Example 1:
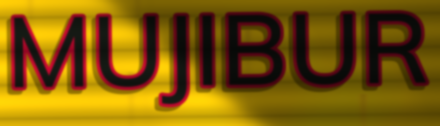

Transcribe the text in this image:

MUJIBUR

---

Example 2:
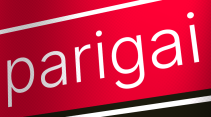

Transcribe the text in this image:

parigai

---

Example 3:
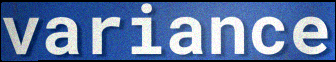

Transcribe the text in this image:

variance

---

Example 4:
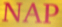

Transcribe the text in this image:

NAP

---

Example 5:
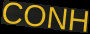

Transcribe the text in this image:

CONH